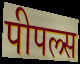
पीपल्स